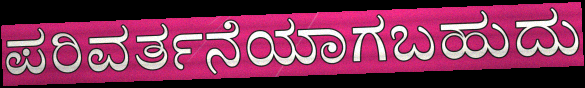
ಪರಿವರ್ತನೆಯಾಗಬಹುದು